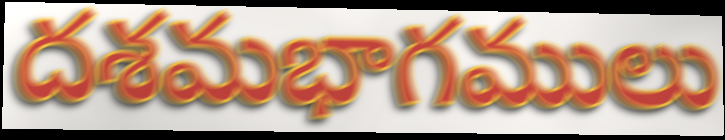
దశమభాగములు